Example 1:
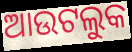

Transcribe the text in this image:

ଆଉଟଲୁକ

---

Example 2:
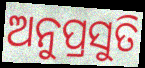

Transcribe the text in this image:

ଅନୁପ୍ରସୁତି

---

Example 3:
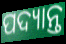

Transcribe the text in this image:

ପଦ୍ୟାନ୍ତ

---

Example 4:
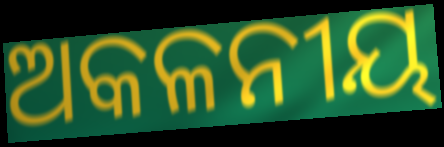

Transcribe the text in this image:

ଅକଳନୀୟ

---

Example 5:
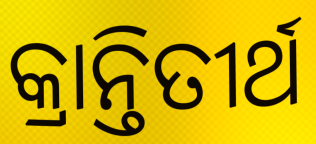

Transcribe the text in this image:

କ୍ରାନ୍ତିତୀର୍ଥ